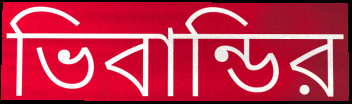
ভিবান্ডির